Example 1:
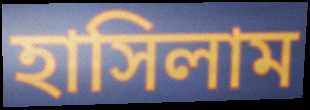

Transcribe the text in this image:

হাসিলাম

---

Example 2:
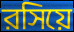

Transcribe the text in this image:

রসিয়ে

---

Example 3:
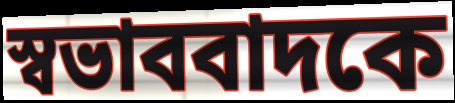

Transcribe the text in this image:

স্বভাববাদকে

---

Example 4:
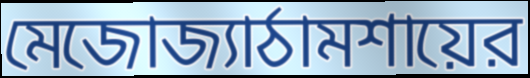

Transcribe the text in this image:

মেজোজ্যাঠামশায়ের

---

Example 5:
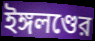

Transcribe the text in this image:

ইঙ্গলণ্ডের